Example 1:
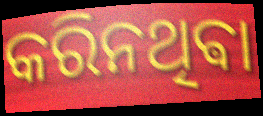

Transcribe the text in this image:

କରିନଥିଵା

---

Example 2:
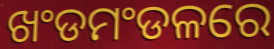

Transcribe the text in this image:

ଖଂଡମଂଡଳରେ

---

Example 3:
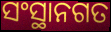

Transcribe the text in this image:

ସଂସ୍ଥାନଗତ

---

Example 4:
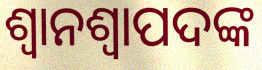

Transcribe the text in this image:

ଶ୍ୱାନଶ୍ୱାପଦଙ୍କ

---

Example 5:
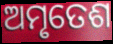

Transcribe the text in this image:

ଅମୃତେଶ